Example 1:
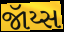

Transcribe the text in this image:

જૉય્સ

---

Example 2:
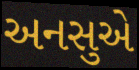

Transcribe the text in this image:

અનસુએ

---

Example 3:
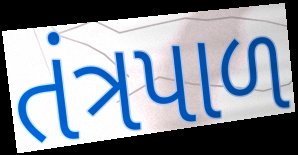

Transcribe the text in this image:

તંત્રપાળ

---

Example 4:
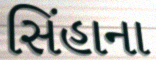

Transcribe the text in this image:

સિંહાના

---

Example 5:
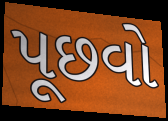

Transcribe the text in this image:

પૂછવો